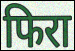
फिरा